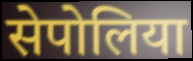
सेपोलिया